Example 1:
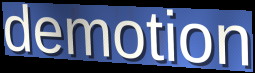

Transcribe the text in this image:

demotion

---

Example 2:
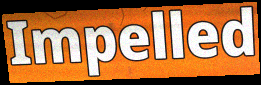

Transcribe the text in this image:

Impelled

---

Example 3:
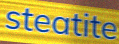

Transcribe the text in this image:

steatite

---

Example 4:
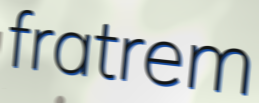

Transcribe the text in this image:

fratrem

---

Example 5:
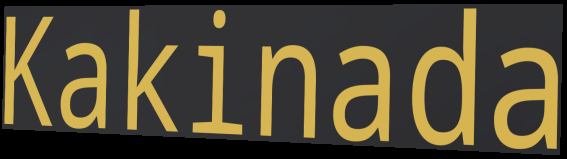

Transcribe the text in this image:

Kakinada